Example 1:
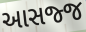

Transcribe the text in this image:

આસજ્જ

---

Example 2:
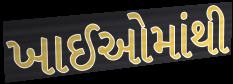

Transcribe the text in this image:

ખાઈઓમાંથી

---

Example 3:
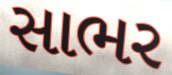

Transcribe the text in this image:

સાભર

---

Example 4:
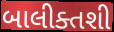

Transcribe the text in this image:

બાલીક્તશી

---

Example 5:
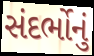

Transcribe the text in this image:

સંદર્ભોનું